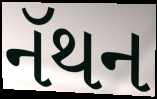
નૅથન